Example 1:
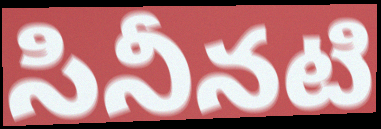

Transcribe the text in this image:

సినీనటి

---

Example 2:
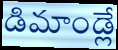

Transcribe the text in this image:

డిమాండ్లే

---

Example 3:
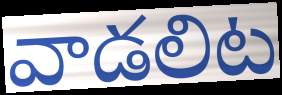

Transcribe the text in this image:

వాడలిట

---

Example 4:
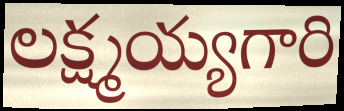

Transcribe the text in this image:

లక్ష్మయ్యగారి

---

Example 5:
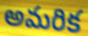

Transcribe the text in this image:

అమరిక